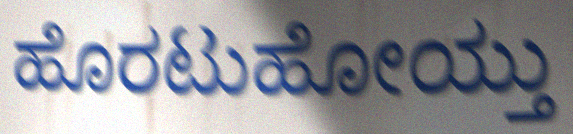
ಹೊರಟುಹೋಯ್ತು